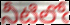
నీటిలోఁ